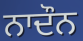
ਨਾਦੌਨ